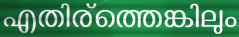
എതിര്ത്തെങ്കിലും